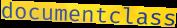
documentclass